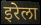
इरेला